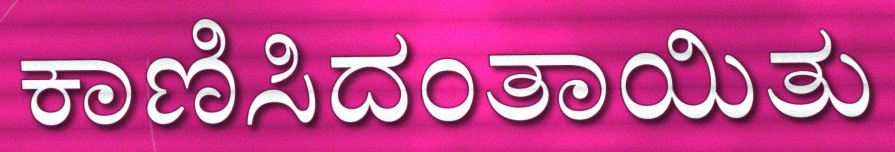
ಕಾಣಿಸಿದಂತಾಯಿತು